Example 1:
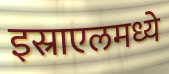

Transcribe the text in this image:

इस्राएलमध्ये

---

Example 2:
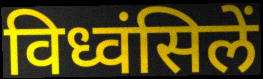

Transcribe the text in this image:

विध्वंसिलें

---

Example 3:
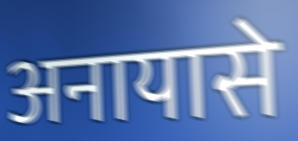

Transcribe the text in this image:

अनायासे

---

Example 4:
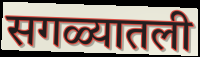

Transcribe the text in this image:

सगळ्यातली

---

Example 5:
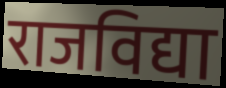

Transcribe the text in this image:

राजविद्या